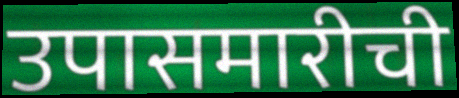
उपासमारीची